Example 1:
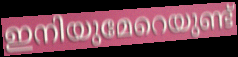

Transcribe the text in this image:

ഇനിയുമേറെയുണ്ട്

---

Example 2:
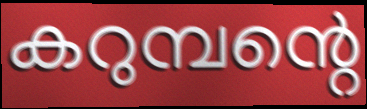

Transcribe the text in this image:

കറുമ്പന്റെ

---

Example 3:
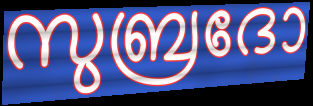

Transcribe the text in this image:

സുബ്രദോ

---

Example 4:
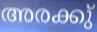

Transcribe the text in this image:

അരക്കു്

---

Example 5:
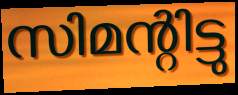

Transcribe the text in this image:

സിമന്റിട്ടു